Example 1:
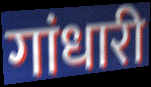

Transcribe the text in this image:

गांधारी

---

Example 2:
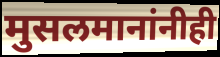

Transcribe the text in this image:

मुसलमानांनीही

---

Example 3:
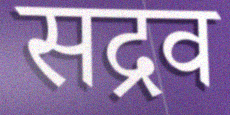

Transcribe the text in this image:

सद्रव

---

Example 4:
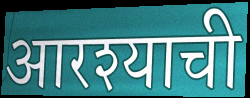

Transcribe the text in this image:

आरश्याची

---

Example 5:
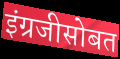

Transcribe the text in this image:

इंग्रजीसोबत